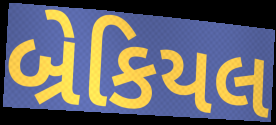
બ્રેકિયલ